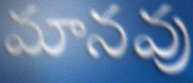
మానవు